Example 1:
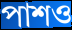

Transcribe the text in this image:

পাশও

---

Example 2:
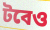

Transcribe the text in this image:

টবেও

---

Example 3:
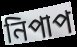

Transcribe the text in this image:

নিপাপ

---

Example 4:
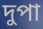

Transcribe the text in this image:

দুপা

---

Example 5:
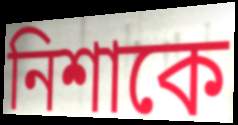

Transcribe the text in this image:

নিশাকে